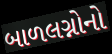
બાળલગ્નોનો